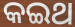
କଇଥ